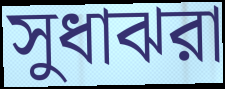
সুধাঝরা